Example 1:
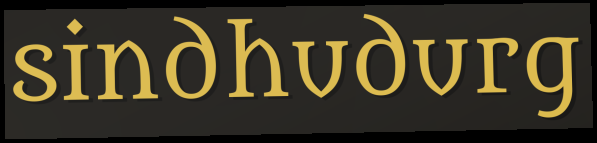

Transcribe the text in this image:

sindhudurg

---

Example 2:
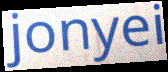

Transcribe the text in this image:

jonyei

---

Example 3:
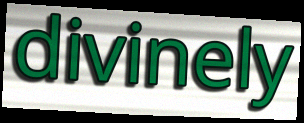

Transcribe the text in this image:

divinely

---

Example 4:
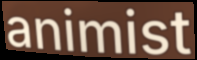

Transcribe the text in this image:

animist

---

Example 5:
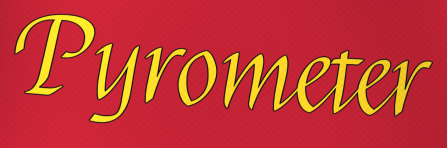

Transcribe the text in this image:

Pyrometer